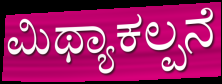
ಮಿಥ್ಯಾಕಲ್ಪನೆ